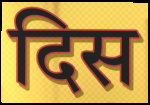
दिस